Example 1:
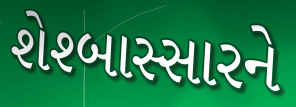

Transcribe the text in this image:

શેશ્બાસ્સારને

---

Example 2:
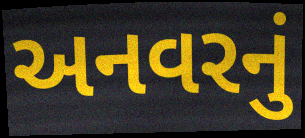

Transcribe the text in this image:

અનવરનું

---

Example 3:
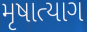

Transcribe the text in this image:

મૃષાત્યાગ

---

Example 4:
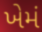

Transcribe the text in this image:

ખેમં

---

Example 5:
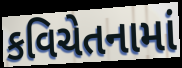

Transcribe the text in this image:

કવિચેતનામાં